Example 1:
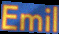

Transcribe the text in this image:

Emil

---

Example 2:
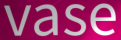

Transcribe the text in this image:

vase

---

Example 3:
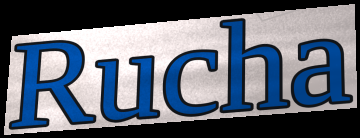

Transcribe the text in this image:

Rucha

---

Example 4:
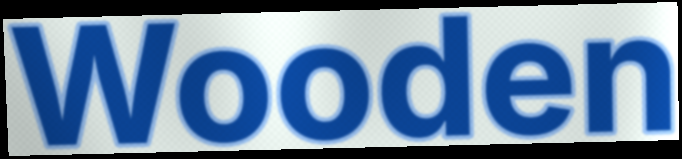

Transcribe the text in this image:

Wooden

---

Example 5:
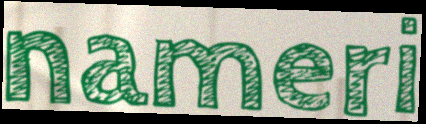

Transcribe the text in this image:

nameri